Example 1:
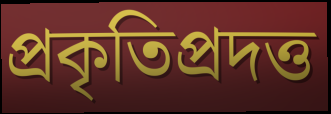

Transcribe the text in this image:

প্রকৃতিপ্রদত্ত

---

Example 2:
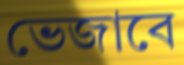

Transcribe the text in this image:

ভেজাবে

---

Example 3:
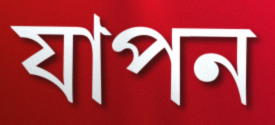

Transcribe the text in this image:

যাপন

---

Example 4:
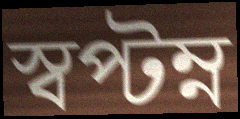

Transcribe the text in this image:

স্বপ্টম্ন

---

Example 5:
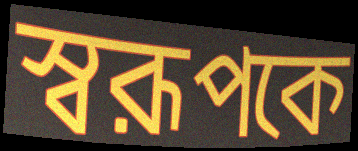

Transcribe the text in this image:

স্বরূপকে